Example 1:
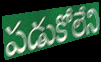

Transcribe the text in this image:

పడుకోలేని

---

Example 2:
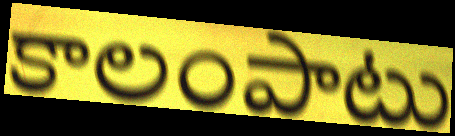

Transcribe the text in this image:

కాలంపాటు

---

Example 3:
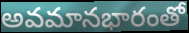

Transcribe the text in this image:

అవమానభారంతో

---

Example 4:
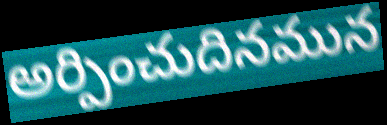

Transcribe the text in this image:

అర్పించుదినమున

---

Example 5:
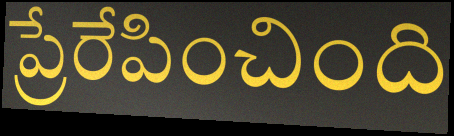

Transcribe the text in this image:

ప్రేరేపించింది